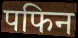
पफिन